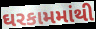
ઘરકામમાંથી